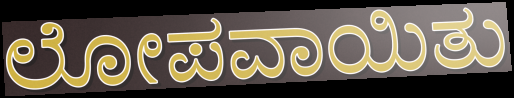
ಲೋಪವಾಯಿತು